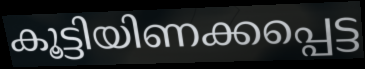
കൂട്ടിയിണക്കപ്പെട്ട